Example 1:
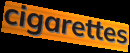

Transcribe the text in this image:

cigarettes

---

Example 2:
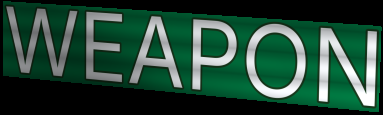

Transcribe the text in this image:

WEAPON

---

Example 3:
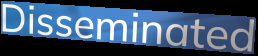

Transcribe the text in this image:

Disseminated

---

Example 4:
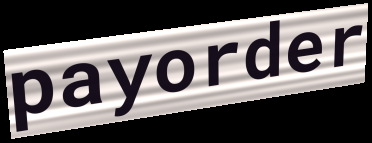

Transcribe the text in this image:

payorder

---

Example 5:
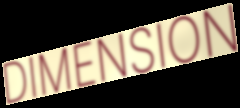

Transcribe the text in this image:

DIMENSION